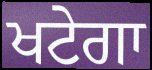
ਖਟੇਗਾ